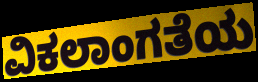
ವಿಕಲಾಂಗತೆಯ